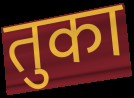
तुका